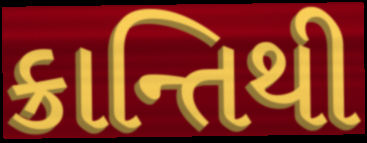
ક્રાન્તિથી